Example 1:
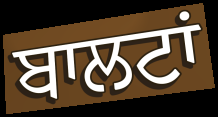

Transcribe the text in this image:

ਬਾਲਟਾਂ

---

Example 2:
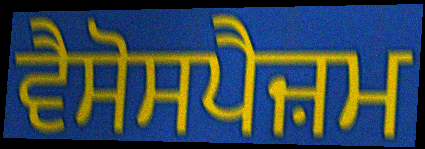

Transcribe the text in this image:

ਵੈਸੋਸਪੈਜ਼ਮ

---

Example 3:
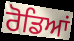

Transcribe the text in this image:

ਰੋਡਿਆਂ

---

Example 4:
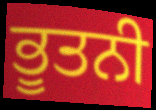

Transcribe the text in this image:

ਭੂਤਨੀ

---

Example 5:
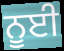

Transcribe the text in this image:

ਨੂਈ